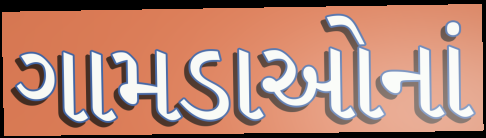
ગામડાઓનાં